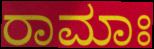
ರಾಮಾಃ